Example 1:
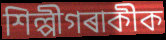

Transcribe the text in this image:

শিল্পীগৰাকীক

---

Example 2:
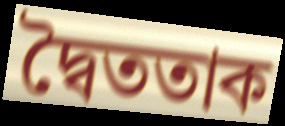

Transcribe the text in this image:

দ্বৈততাক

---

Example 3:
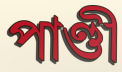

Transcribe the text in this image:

পাণ্ডী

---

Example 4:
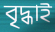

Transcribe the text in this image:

বৃদ্ধাই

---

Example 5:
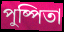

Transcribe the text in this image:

পুষ্পিতা